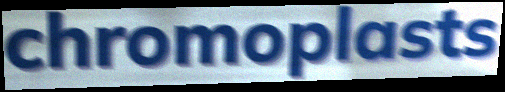
chromoplasts